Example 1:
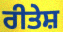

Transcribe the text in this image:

ਰੀਤੇਸ਼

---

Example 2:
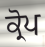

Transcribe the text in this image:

ਕ੍ਰੋਪ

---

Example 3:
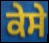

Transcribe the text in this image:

ਕੇਸੇ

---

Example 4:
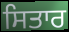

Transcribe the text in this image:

ਸਿਤਾਰ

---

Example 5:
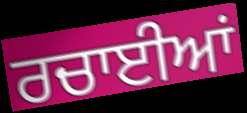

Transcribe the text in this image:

ਰਚਾਈਆਂ